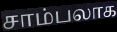
சாம்பலாக